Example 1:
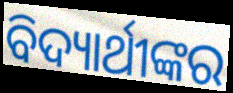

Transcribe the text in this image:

ବିଦ୍ୟାର୍ଥୀଙ୍କର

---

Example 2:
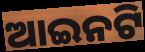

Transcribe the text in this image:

ଆଇନଟି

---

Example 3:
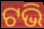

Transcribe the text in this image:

ଟଭି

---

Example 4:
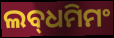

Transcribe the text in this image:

ଲବ୍‌ଧମିମଂ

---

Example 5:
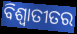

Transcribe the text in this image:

ବିଶ୍ଵାତୀତର